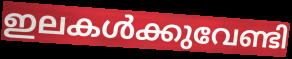
ഇലകൾക്കുവേണ്ടി